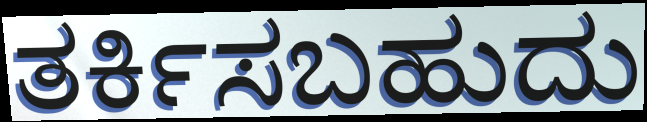
ತರ್ಕಿಸಬಹುದು